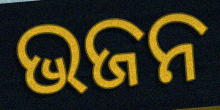
ଭଜନ